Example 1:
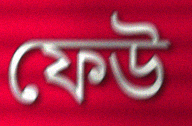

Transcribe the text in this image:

ফেউ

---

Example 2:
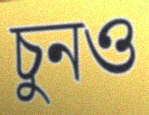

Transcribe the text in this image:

চুনও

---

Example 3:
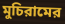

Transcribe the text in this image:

মুচিরামের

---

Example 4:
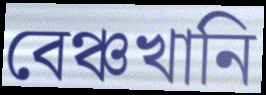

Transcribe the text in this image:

বেঞ্চখানি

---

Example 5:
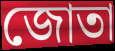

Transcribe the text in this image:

জোতা